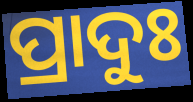
ପ୍ରାଦୁଃ